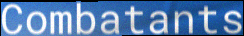
Combatants